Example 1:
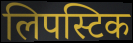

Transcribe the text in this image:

लिपस्टिक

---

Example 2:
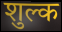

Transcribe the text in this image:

शुल्‍क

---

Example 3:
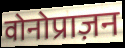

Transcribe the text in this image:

वोनोप्राज़न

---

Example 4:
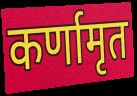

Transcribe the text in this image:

कर्णामृत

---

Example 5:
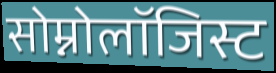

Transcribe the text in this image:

सोम्नोलॉजिस्ट